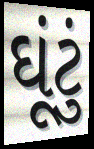
ઘૂંટું